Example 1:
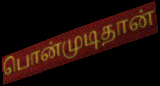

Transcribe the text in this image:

பொன்முடிதான்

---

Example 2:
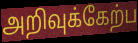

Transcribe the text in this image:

அறிவுக்கேற்ப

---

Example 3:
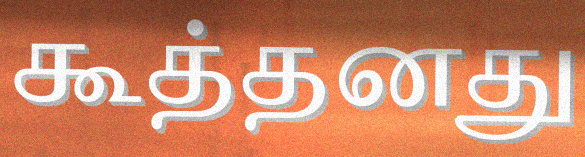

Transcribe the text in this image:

கூத்தனது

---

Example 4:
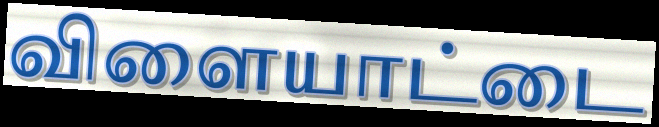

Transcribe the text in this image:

விளையாட்டை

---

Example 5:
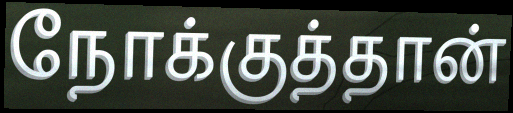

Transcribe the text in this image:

நோக்குத்தான்